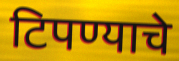
टिपण्याचे